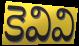
కెవివి